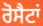
ਰੋਸੈਟਾਂ